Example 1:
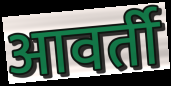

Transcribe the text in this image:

आवर्ती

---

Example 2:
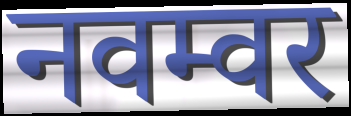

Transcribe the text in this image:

नवम्वर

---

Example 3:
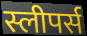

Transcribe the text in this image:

स्लीपर्स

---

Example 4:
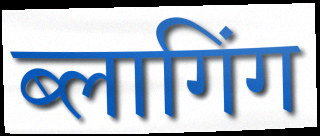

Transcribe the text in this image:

ब्लागिंग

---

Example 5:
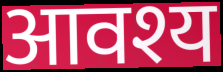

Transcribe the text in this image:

आवश्य